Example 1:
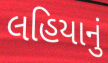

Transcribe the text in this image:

લહિયાનું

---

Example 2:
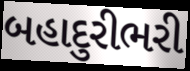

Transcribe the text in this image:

બહાદુરીભરી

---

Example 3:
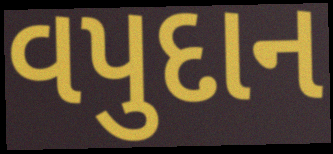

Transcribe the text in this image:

વપુદાન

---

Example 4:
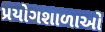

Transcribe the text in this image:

પ્રયોગશાળાઓ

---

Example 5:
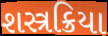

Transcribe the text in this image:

શસ્ત્રક્રિયા